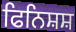
ਫਿਨਿਸ਼ਸ਼